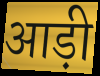
आड़ी